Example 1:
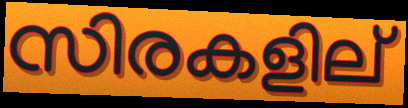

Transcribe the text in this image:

സിരകളില്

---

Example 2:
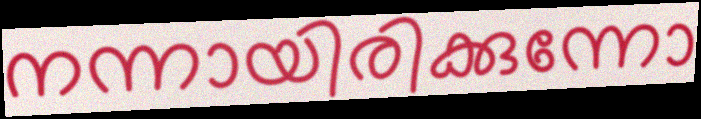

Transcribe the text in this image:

നന്നായിരിക്കുന്നോ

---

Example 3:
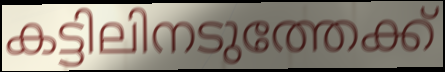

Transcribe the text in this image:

കട്ടിലിനടുത്തേക്ക്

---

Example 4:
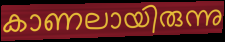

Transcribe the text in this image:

കാണലായിരുന്നു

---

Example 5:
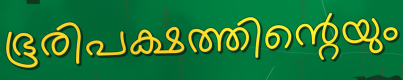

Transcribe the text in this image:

ഭൂരിപക്ഷത്തിന്റെയും